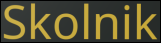
Skolnik